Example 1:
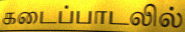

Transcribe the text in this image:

கடைப்பாடலில்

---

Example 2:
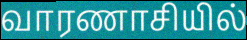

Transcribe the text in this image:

வாரணாசியில்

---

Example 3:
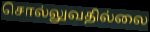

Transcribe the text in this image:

சொல்லுவதில்லை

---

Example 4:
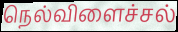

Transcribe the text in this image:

நெல்விளைச்சல்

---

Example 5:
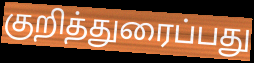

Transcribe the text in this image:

குறித்துரைப்பது